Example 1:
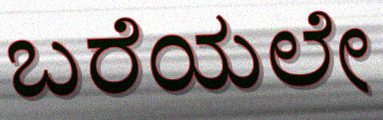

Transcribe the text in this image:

ಬರೆಯಲೇ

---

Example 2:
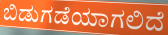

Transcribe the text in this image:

ಬಿಡುಗಡೆಯಾಗಲಿದೆ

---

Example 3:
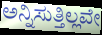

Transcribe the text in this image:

ಅನ್ನಿಸುತ್ತಿಲ್ಲವೇ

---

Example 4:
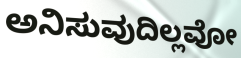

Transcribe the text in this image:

ಅನಿಸುವುದಿಲ್ಲವೋ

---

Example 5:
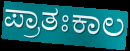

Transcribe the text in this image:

ಪ್ರಾತಃಕಾಲ